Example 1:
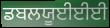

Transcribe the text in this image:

ਡਬਲਯੂਈਈਈ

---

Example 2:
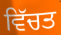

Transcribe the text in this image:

ਵਿੱਚਤ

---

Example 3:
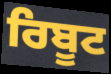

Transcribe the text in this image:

ਰਿਬੂਟ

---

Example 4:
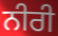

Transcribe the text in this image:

ਨੀਰੀ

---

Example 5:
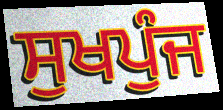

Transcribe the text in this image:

ਸੁਖਪੁੰਜ